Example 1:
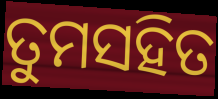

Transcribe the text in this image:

ତୁମସହିତ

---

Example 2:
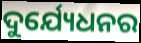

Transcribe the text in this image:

ଦୁର୍ଯ୍ୟେଧନର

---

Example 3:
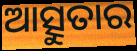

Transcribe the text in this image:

ଆତ୍ସୁତାର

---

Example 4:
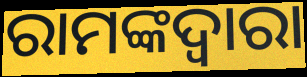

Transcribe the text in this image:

ରାମଙ୍କଦ୍ଵାରା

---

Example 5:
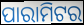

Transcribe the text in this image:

ପାରାମିଟର